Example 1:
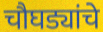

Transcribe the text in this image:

चौघड्यांचे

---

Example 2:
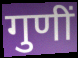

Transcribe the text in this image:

गुणीं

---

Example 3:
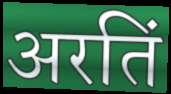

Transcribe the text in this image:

अरतिं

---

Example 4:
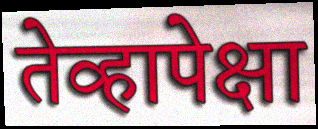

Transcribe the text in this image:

तेव्हापेक्षा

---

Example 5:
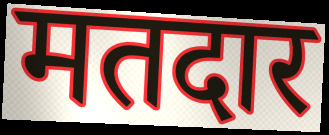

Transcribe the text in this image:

मतदार